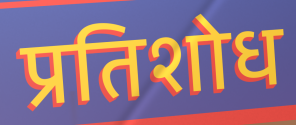
प्रतिशोध